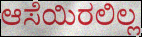
ಆಸೆಯಿರಲಿಲ್ಲ